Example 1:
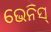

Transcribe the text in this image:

ଭେନିସ୍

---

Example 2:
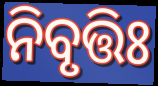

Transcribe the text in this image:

ନିବୃତ୍ତିଃ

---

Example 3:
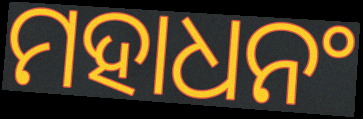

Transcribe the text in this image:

ମହାଧନଂ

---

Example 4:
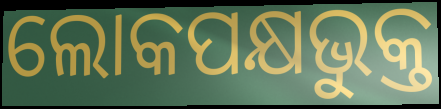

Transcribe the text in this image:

ଲୋକପକ୍ଷଭୁକ୍ତ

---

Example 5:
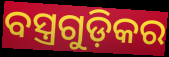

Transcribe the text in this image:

ବସ୍ତ୍ରଗୁଡ଼ିକର